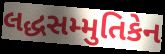
લદ્ધસમ્મુતિકેન